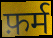
फ़र्म